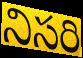
నిసరి